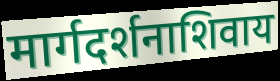
मार्गदर्शनाशिवाय